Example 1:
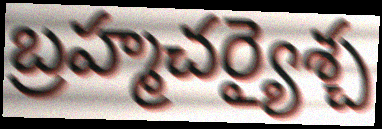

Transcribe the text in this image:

బ్రహ్మచర్యైశ్చ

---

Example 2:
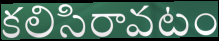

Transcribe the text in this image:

కలిసిరావటం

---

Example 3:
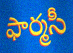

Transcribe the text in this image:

ఫార్మసీ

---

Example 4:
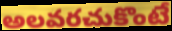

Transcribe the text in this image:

అలవరచుకొంటే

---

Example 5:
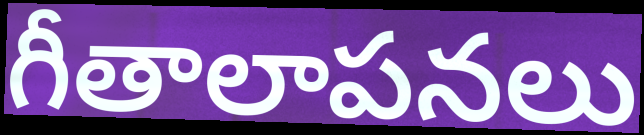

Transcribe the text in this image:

గీతాలాపనలు